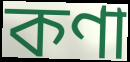
কণা